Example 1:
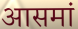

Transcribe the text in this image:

आसमां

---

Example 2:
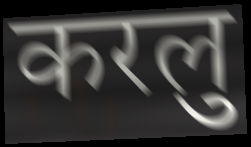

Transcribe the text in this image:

करलु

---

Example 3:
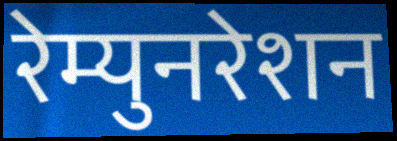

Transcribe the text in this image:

रेम्युनरेशन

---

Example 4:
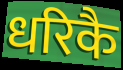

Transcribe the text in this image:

धरिकै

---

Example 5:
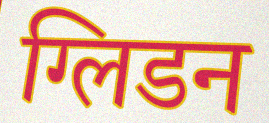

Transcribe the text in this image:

ग्लिडन